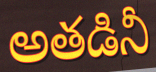
అతడినీ